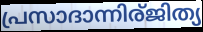
പ്രസാദാന്നിര്ജിത്യ